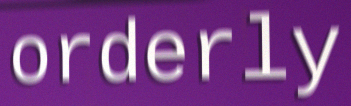
orderly